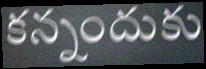
కన్నందుకు